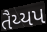
તૈય્યપ